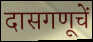
दासगणूचें